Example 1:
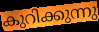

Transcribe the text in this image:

കുറിക്കുന്നു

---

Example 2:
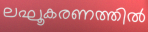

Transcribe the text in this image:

ലഘൂകരണത്തിൽ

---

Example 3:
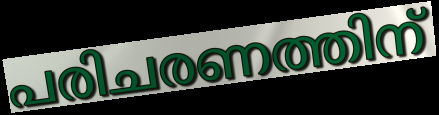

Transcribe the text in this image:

പരിചരണത്തിന്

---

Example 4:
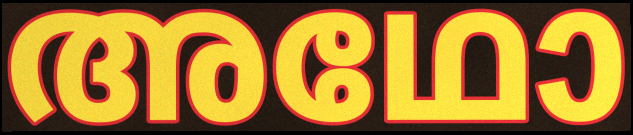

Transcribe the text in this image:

അഥോ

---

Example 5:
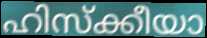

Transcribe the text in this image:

ഹിസ്ക്കീയാ